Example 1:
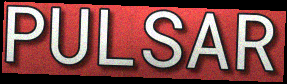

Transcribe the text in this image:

PULSAR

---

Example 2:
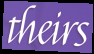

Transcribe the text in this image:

theirs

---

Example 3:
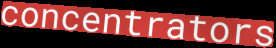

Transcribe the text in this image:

concentrators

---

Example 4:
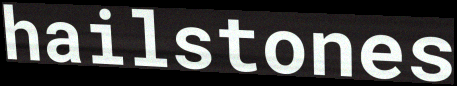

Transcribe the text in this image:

hailstones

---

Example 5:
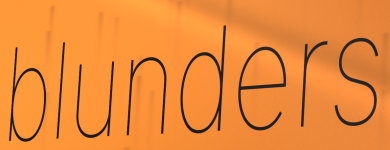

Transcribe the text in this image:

blunders